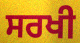
ਸਰਖੀ